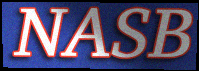
NASB